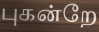
புகன்றே